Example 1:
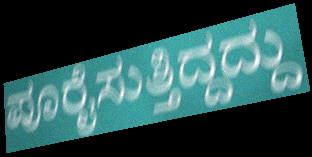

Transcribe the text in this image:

ಪೂರೈಸುತ್ತಿದ್ದದ್ದು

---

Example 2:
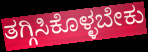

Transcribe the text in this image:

ತಗ್ಗಿಸಿಕೊಳ್ಳಬೇಕು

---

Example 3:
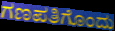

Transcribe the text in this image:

ಗಣಪತಿಗೊಂದು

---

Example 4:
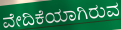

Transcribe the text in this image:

ವೇದಿಕೆಯಾಗಿರುವ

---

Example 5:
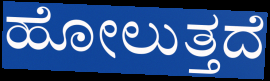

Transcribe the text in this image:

ಹೋಲುತ್ತದೆ